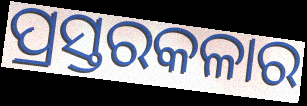
ପ୍ରସ୍ତରକଳାର